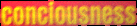
conciousness